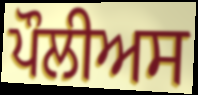
ਪੌਲੀਅਸ